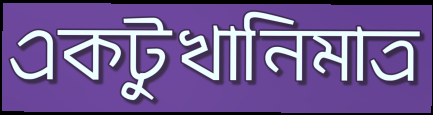
একটুখানিমাত্র